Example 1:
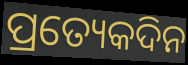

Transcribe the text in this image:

ପ୍ରତ୍ୟେକଦିନ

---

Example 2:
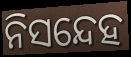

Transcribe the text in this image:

ନିସନ୍ଦେହ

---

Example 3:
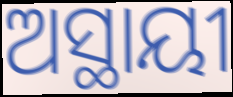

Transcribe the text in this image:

ଅସ୍ଥାୟୀ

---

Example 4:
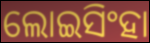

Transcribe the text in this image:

ଲୋଇସିଂହା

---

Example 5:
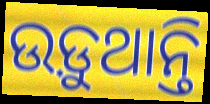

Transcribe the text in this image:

ଉଡ଼ୁଥାନ୍ତି